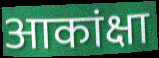
आकांक्षा